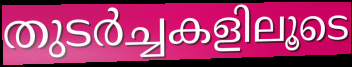
തുടർച്ചകളിലൂടെ